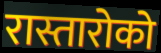
रास्तारोको